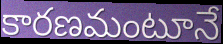
కారణమంటూనే